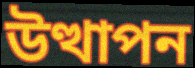
উত্থাপন